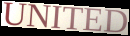
UNITED